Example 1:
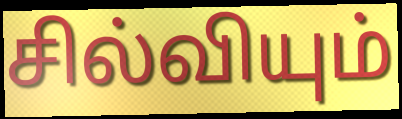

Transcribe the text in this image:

சில்வியும்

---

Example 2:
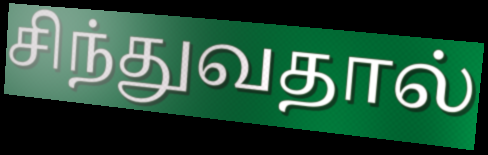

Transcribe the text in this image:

சிந்துவதால்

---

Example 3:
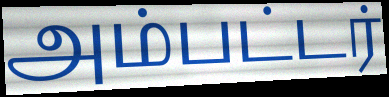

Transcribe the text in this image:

அம்பட்டர்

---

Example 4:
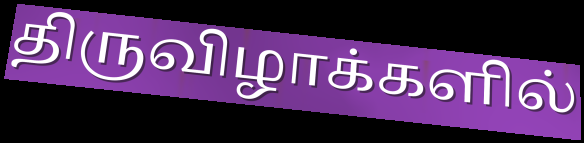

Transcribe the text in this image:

திருவிழாக்களில்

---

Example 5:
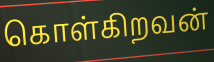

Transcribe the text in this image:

கொள்கிறவன்